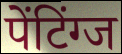
पेंटिंग्ज